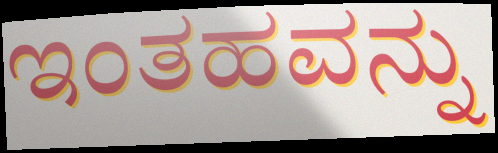
ಇಂತಹವನ್ನು